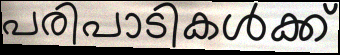
പരിപാടികൾക്ക്